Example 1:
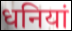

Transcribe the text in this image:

धनियां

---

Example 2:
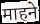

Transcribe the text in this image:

माहने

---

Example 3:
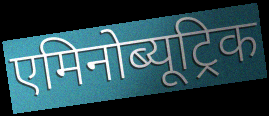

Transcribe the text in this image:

एमिनोब्यूट्रिक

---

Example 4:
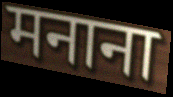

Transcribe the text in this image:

मनाना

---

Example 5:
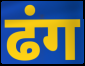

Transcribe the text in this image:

ढंग